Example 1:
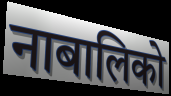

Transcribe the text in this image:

नाबालिको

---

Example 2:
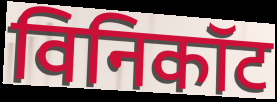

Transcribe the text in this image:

विनिकॉट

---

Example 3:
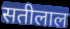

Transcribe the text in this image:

सतीलाल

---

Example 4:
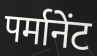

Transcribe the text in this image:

पर्मानेंट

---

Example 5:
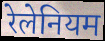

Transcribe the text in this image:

रेलेनियम